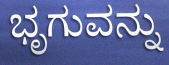
ಭೃಗುವನ್ನು